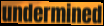
undermined